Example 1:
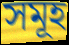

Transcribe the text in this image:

সমূহ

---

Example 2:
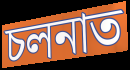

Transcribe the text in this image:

চলনাত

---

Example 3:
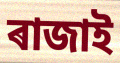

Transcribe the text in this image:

ৰাজাই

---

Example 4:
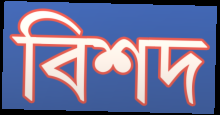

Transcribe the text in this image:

বিশদ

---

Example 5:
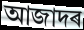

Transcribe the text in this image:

আজাদৰ